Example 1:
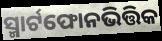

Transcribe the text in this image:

ସ୍ମାର୍ଟଫୋନଭିତ୍ତିକ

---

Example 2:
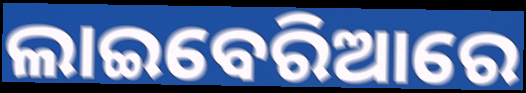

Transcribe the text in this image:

ଲାଇବେରିଆରେ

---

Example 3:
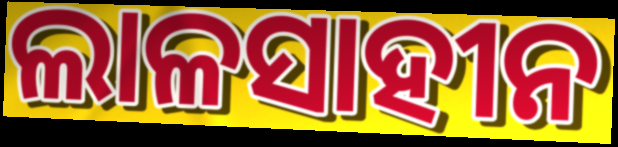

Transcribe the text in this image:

ଲାଳସାହୀନ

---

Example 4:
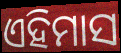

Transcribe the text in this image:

ଏହିମାସ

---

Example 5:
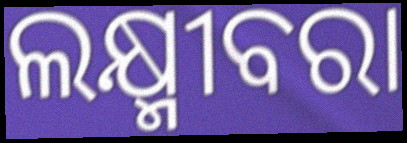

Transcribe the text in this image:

ଲକ୍ଷ୍ମୀବରା